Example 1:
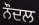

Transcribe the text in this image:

ਨੌਦਲ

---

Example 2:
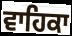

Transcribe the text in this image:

ਵਾਹਿਕਾ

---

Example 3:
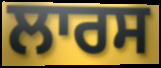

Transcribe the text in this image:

ਲਾਰਸ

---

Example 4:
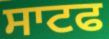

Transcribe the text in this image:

ਸਾਟਫ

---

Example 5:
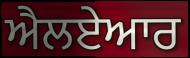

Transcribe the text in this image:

ਐਲਏਆਰ